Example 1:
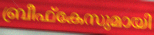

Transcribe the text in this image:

ബ്രീഫ്കേസുമായി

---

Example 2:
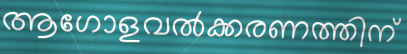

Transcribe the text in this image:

ആഗോളവൽക്കരണത്തിന്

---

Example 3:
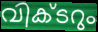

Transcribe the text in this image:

വിക്ടറും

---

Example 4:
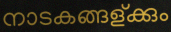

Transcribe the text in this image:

നാടകങ്ങള്ക്കും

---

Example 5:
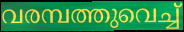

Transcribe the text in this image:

വരമ്പത്തുവെച്ച്